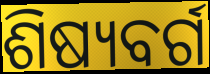
ଶିଷ୍ୟବର୍ଗ